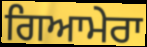
ਗਿਆਮੇਰਾ